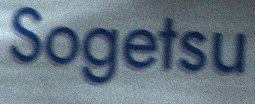
Sogetsu